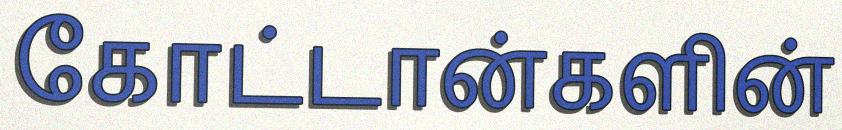
கோட்டான்களின்